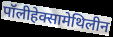
पॉलीहेक्सामेथिलीन